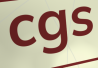
cgs